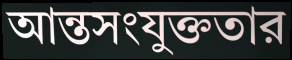
আন্তসংযুক্ততার